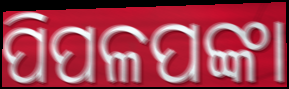
ପିପଳପଙ୍କା